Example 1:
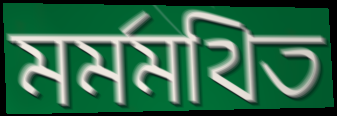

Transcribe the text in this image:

মর্মমথিত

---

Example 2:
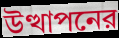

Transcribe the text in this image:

উত্থাপনের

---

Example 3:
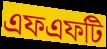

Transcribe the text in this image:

এফএফটি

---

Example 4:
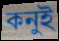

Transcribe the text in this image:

কনুই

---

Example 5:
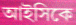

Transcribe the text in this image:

আইসিকে